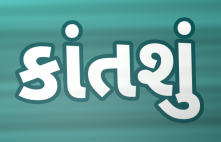
કાંતશું